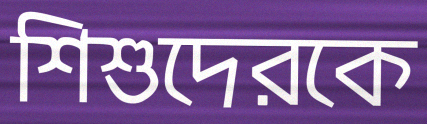
শিশুদেরকে